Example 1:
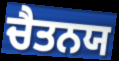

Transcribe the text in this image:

ਚੈਤਨਯ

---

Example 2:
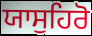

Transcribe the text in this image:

ਯਾਸੁਹਿਰੋ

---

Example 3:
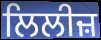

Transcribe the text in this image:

ਲਿਲੀਜ਼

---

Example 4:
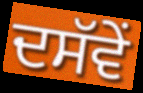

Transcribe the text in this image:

ਦਸੱਵੇਂ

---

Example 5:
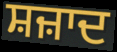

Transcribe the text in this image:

ਸ਼ਜ਼ਾਦ